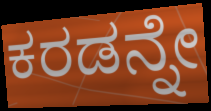
ಕರಡನ್ನೇ